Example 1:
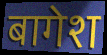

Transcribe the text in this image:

बागेश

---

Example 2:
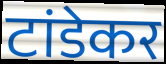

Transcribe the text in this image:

टांडेकर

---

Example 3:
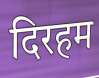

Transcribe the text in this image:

दिरहम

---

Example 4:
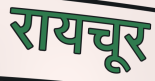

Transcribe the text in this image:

रायचूर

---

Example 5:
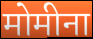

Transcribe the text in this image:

मोमीना